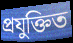
প্ৰযুক্তিত